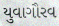
યુવાગૌરવ